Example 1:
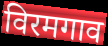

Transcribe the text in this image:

विरमगाव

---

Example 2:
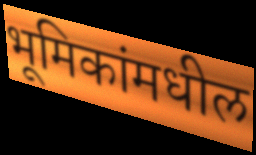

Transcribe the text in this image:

भूमिकांमधील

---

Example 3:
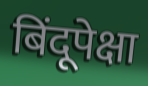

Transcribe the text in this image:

बिंदूपेक्षा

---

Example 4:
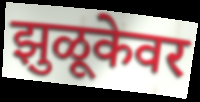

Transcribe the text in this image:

झुळूकेवर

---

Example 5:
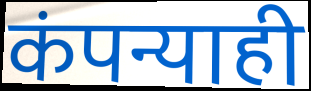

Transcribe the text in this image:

कंपन्याही